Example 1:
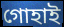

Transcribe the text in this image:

গোহাই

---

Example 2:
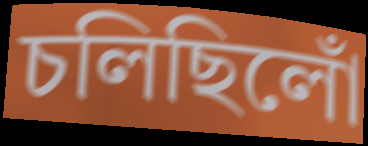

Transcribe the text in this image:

চলিছিলোঁ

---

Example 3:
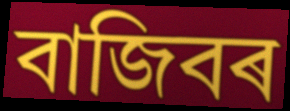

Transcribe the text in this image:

বাজিবৰ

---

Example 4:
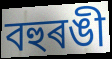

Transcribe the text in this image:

বহুৰঙী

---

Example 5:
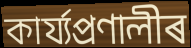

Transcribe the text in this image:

কাৰ্য্যপ্ৰণালীৰ